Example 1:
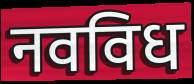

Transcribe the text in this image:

नवविध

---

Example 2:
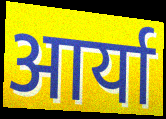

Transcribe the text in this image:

आर्या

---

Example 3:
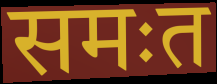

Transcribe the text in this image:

समःत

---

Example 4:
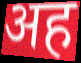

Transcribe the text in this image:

अह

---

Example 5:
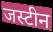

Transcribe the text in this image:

जस्टीन